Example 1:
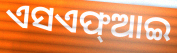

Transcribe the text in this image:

ଏସଏଫ୍ଆଇ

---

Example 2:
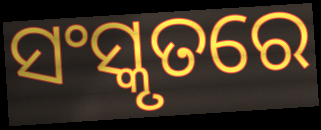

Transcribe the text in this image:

ସଂସ୍କୃତରେ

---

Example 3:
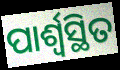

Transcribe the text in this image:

ପାର୍ଶ୍ୱସ୍ଥିତ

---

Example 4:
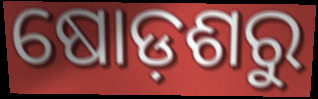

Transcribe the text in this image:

ଷୋଡ଼ଶରୁ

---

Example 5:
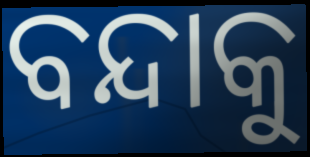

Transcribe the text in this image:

ବନ୍ଦାକୁ